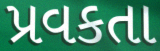
પ્રવકતા